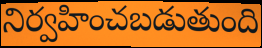
నిర్వహించబడుతుంది